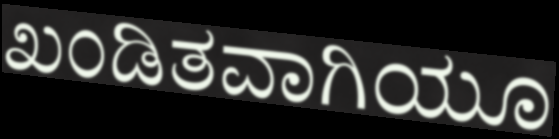
ಖಂಡಿತವಾಗಿಯೂ